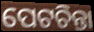
ପେଟଚିନ୍ତା